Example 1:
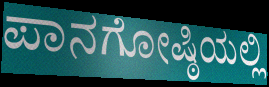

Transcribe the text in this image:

ಪಾನಗೋಷ್ಠಿಯಲ್ಲಿ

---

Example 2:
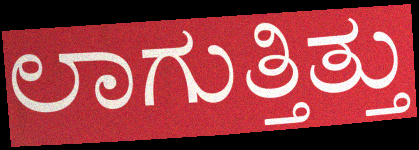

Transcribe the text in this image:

ಲಾಗುತ್ತಿತ್ತು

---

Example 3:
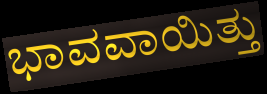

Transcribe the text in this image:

ಭಾವವಾಯಿತ್ತು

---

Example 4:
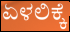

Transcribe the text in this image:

ಏಳಲಿಕ್ಕೆ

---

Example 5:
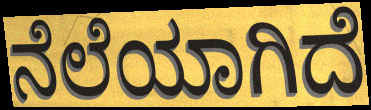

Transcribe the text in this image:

ನೆಲೆಯಾಗಿದೆ